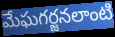
మేఘగర్జనలాంటి